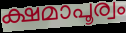
ക്ഷമാപൂര്വം